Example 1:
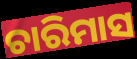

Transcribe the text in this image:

ଚାରିମାସ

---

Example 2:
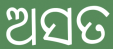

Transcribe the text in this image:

ଅସତ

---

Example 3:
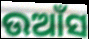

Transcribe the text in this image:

ଉଆଁସ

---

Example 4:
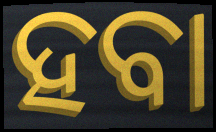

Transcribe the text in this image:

ହବା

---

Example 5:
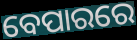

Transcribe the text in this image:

ବେପାରରେ